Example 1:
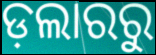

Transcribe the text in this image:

ଡ଼ଲାରରୁ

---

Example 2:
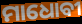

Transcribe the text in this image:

ମାଧୋବୀ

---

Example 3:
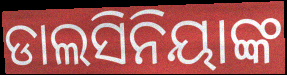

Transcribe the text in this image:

ଡାଲସିନିୟାଙ୍କ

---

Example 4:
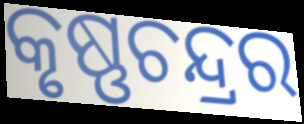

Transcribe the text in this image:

କୃଷ୍ଣଚନ୍ଦ୍ରର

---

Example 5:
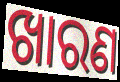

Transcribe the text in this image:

ଖାରଣ